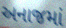
અનાજમાં